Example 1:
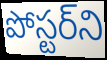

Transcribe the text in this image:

పోస్టర్‌ని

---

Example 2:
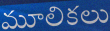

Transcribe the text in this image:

మూలికలు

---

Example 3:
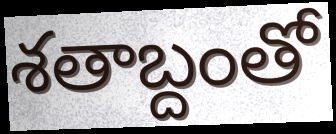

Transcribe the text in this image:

శతాబ్దంతో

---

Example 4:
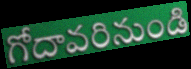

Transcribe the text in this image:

గోదావరినుండి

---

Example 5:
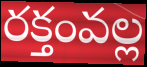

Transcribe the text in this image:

రక్తంవల్ల